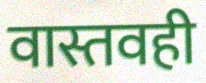
वास्तवही